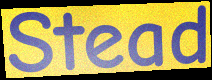
Stead